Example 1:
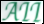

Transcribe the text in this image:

AII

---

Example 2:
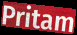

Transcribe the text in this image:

Pritam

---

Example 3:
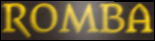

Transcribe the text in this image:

ROMBA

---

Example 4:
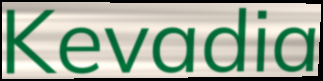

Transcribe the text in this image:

Kevadia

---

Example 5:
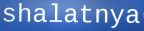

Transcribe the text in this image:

shalatnya